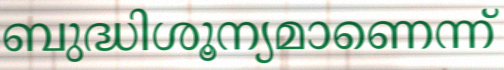
ബുദ്ധിശൂന്യമാണെന്ന്